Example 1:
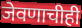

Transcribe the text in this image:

जेवणाचीही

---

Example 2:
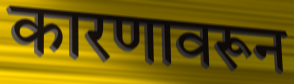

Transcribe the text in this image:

कारणावरून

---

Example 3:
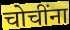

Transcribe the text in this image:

चोचींना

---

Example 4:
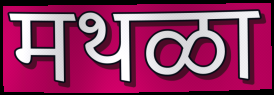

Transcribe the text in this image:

मथळा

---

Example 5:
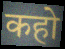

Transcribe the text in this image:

कहो